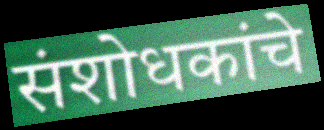
संशोधकांचे